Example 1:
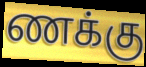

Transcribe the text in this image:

ணக்கு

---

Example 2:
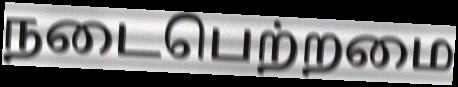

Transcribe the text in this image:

நடைபெற்றமை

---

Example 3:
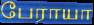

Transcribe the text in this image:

பேராயா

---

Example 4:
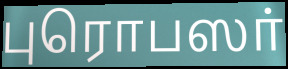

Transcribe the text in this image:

புரொபஸர்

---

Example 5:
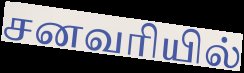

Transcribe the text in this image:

சனவரியில்